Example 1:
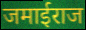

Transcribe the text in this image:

जमाईराज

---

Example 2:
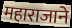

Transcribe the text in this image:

महाराजाने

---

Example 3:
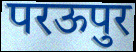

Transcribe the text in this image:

परऊपुर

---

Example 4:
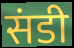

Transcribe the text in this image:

संडी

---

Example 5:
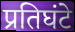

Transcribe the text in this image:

प्रतिघंटे